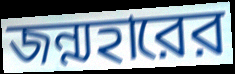
জন্মহারের